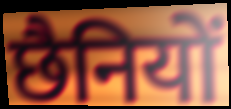
छैनियों